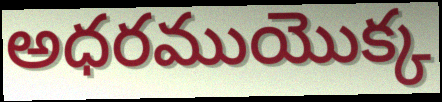
అధరముయొక్క